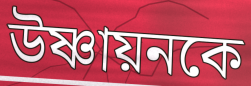
উষ্ণায়নকে